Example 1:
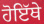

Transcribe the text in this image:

ਹੋਇੱਥੇ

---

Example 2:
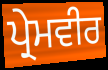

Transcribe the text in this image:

ਪ੍ਰੇਮਵੀਰ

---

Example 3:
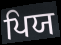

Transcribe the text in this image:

ਪਿਯ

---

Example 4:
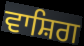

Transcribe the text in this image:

ਵਾਸ਼ਿਗ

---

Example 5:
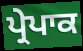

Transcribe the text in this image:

ਪ੍ਰੇਪਾਕ